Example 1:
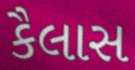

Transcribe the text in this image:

કૈલાસ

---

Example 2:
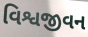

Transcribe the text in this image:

વિશ્વજીવન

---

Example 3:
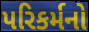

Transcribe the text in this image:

પરિકર્મનો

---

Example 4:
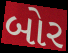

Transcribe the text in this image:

બોર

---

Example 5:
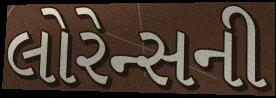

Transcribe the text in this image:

લોરેન્સની